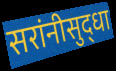
सरांनीसुद्धा